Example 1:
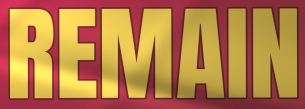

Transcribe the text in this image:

REMAIN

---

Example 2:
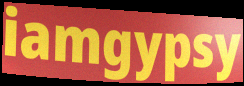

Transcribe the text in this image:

iamgypsy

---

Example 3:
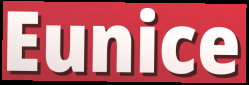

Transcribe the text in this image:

Eunice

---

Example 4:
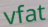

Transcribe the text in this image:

vfat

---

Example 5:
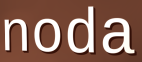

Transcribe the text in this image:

noda